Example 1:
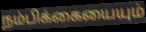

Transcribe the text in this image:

நம்பிக்கையையும்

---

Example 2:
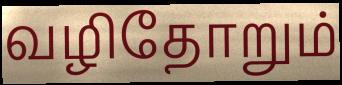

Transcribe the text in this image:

வழிதோறும்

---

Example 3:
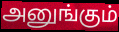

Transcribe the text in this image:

அனுங்கும்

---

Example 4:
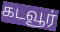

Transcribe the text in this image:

கடவூர்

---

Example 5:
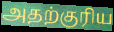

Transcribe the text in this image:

அதற்குரிய